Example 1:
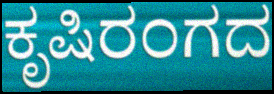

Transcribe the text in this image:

ಕೃಷಿರಂಗದ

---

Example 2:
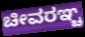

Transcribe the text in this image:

ಚೀವರಞ್ಚ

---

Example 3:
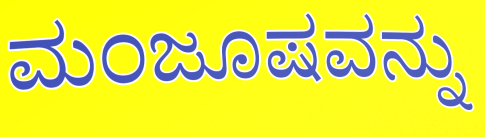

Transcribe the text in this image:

ಮಂಜೂಷವನ್ನು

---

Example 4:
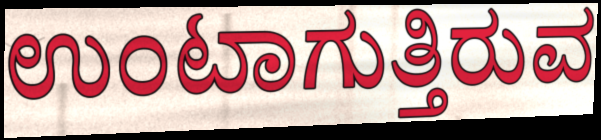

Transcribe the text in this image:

ಉಂಟಾಗುತ್ತಿರುವ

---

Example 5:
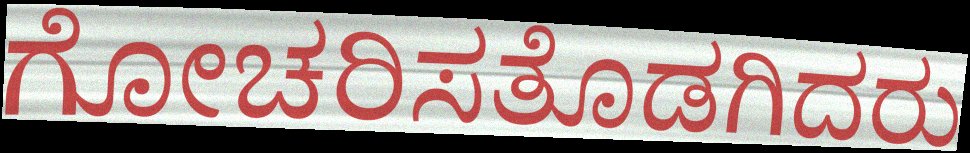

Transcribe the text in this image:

ಗೋಚರಿಸತೊಡಗಿದರು